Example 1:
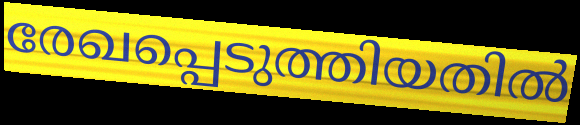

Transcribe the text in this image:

രേഖപ്പെടുത്തിയതിൽ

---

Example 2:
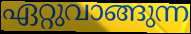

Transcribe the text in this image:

ഏറ്റുവാങ്ങുന്ന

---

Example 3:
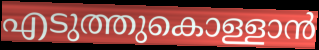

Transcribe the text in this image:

എടുത്തുകൊള്ളാൻ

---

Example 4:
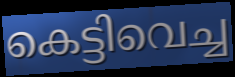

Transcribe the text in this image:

കെട്ടിവെച്ച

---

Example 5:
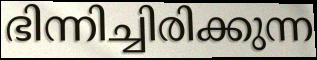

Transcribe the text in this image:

ഭിന്നിച്ചിരിക്കുന്ന